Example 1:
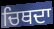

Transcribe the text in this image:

ਚਿਥਦਾ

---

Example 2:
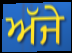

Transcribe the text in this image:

ਅੱਜੇ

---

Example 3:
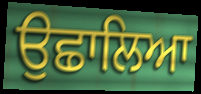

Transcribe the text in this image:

ਉਛਾਲਿਆ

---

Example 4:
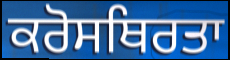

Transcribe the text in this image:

ਕਰੋਸਥਿਰਤਾ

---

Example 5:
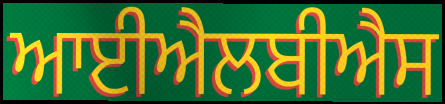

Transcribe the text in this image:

ਆਈਐਲਬੀਐਸ